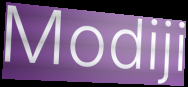
Modiji